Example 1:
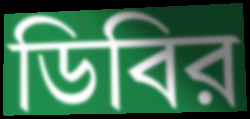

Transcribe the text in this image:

ডিবির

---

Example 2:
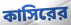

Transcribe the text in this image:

কাসিরের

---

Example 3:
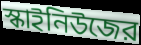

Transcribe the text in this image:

স্কাইনিউজের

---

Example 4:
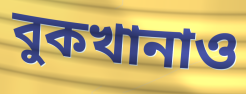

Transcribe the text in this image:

বুকখানাও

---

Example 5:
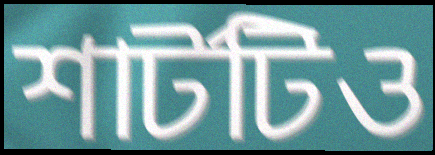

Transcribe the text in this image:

শার্টটিও